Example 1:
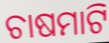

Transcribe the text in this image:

ଚାଷମାଟି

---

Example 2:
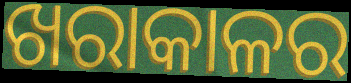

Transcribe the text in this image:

ଖରାକାଳର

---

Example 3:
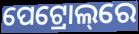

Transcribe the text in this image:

ପେଟ୍ରୋଲ୍‌ରେ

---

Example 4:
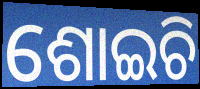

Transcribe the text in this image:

ଶୋଇଚି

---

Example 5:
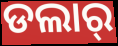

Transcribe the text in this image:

ଡଲାର୍